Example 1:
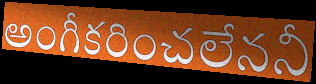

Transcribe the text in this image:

అంగీకరించలేననీ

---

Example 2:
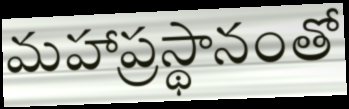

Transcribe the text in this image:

మహాప్రస్థానంతో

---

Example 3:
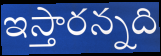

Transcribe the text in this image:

ఇస్తారన్నది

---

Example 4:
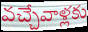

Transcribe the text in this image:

వచ్చేవాళ్లకు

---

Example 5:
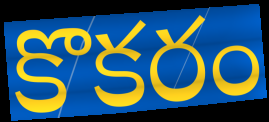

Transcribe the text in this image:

కొకరం